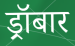
ड्रॉबार